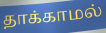
தாக்காமல்